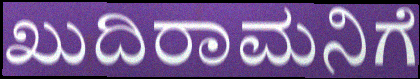
ಖುದಿರಾಮನಿಗೆ